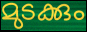
മുടക്കും